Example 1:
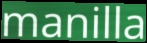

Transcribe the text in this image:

manilla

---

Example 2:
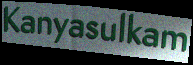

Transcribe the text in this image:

Kanyasulkam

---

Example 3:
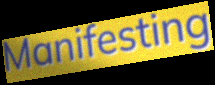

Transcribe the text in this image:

Manifesting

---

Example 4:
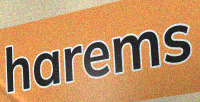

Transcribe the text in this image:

harems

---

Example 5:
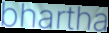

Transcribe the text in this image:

bhartha